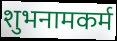
शुभनामकर्म